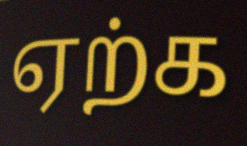
ஏற்க